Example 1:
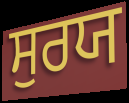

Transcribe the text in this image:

ਸੁਰਯ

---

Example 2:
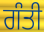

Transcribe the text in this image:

ਗੰਤੀ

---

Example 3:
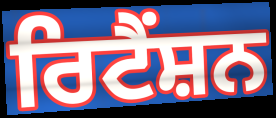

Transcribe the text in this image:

ਰਿਟੈਂਸ਼ਨ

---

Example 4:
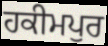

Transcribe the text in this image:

ਹਕੀਮਪੁਰ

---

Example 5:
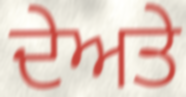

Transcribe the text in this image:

ਦੇਅਤੇ